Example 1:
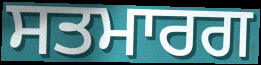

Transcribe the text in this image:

ਸਤਮਾਰਗ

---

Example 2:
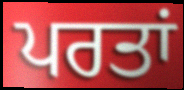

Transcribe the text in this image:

ਪਰਤਾਂ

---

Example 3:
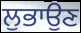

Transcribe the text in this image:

ਲੁਭਾਉਣ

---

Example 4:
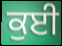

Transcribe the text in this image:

ਕੁਈ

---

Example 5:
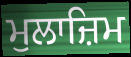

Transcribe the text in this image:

ਮੁਲਾਜ਼ਿਮ